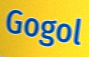
Gogol